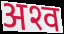
अश्व